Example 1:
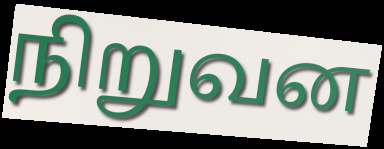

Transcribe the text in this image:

நிறுவன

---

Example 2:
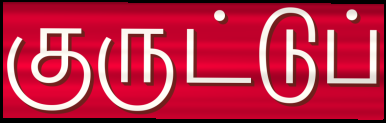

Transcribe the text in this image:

குருட்டுப்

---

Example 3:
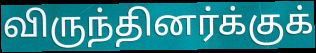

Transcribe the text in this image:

விருந்தினர்க்குக்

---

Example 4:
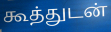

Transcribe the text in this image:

கூத்துடன்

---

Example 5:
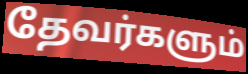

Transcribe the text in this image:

தேவர்களும்